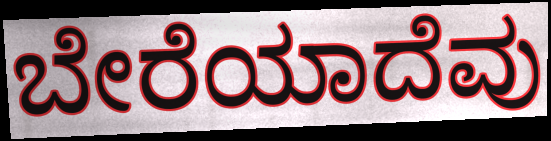
ಬೇರೆಯಾದೆವು